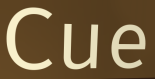
Cue